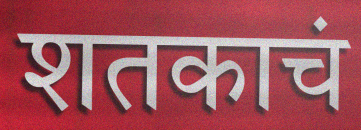
शतकाचं